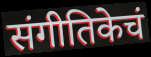
संगीतिकेचं